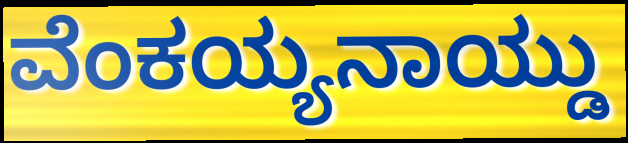
ವೆಂಕಯ್ಯನಾಯ್ಡು